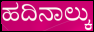
ಹದಿನಾಲ್ಕು